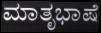
ಮಾತೃಭಾಷೆ